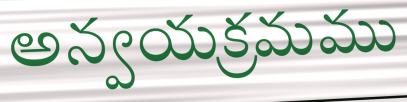
అన్వయక్రమము